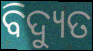
ବିଦ୍ୟୁତ